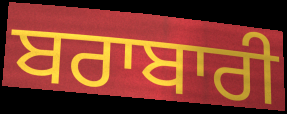
ਬਰਾਬਾਰੀ